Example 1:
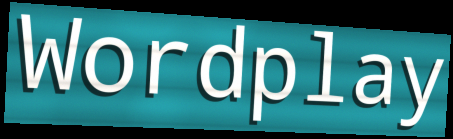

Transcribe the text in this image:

Wordplay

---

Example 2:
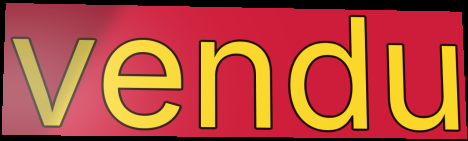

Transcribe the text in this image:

vendu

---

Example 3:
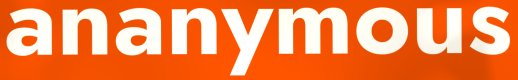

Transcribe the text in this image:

ananymous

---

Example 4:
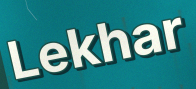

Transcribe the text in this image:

Lekhar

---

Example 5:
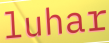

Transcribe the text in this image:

luhar